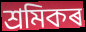
শ্ৰমিকৰ